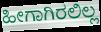
ಹೀಗಾಗಿರಲಿಲ್ಲ